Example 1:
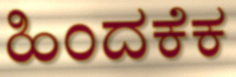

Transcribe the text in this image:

ಹಿಂದಕೆಕ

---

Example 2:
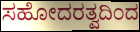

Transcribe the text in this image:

ಸಹೋದರತ್ವದಿಂದ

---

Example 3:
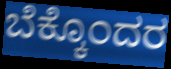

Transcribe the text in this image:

ಬೆಕ್ಕೊಂದರ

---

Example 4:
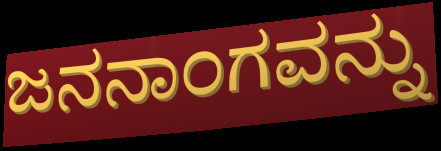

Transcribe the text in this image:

ಜನನಾಂಗವನ್ನು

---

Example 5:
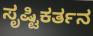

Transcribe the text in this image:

ಸೃಷ್ಟಿಕರ್ತನ